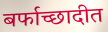
बर्फाच्छादीत